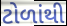
ટોળાંથી